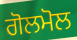
ਗੋਲਮੋਲ